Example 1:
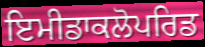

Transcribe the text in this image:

ਇਮੀਡਾਕਲੋਪਰਿਡ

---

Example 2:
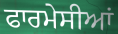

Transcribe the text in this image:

ਫਾਰਮੇਸੀਆਂ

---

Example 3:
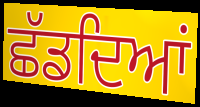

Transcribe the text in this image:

ਛੱਡਦਿਆਂ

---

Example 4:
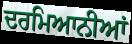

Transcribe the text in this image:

ਦਰਮਿਆਨੀਆਂ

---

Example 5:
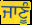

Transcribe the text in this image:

ਜਾਣੂੰ